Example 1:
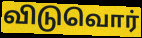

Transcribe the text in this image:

விடுவொர்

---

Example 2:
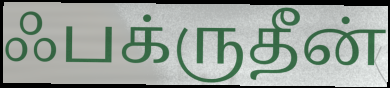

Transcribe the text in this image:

ஃபக்ருதீன்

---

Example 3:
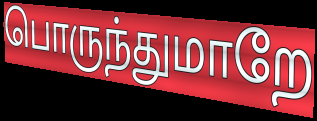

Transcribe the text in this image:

பொருந்துமாறே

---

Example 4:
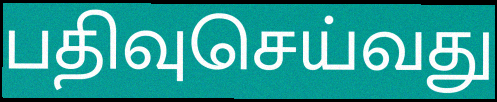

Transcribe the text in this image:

பதிவுசெய்வது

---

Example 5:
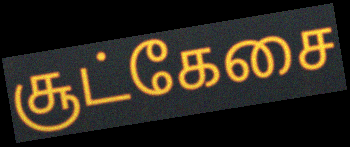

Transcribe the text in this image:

சூட்கேசை